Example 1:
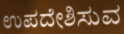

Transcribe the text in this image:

ಉಪದೇಶಿಸುವ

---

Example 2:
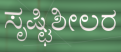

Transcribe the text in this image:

ಸೃಷ್ಟಿಶೀಲರ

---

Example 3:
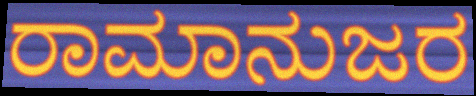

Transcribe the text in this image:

ರಾಮಾನುಜರ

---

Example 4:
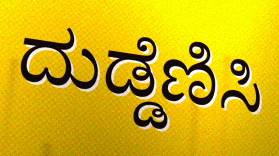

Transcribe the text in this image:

ದುಡ್ಡೆಣಿಸಿ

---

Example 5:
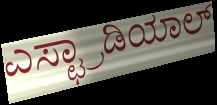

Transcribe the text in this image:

ಎಸ್ಟ್ರಾಡಿಯಾಲ್